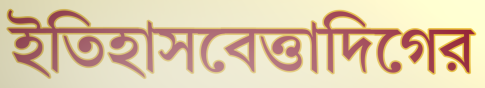
ইতিহাসবেত্তাদিগের